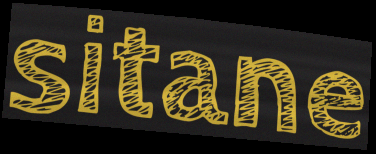
sitane